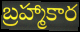
బ్రహ్మాకార